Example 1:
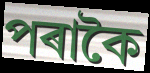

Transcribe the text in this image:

পৰাকৈ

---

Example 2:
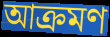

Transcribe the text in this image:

আক্ৰমণ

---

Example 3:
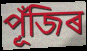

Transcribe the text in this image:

পূঁজিৰ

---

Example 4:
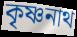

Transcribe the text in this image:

কৃষ্ণনাথ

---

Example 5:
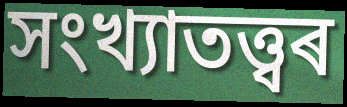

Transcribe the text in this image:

সংখ্যাতত্ত্বৰ